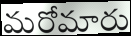
మరోమారు